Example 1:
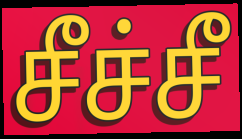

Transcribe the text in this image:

சீச்சீ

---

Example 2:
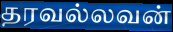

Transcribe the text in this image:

தரவல்லவன்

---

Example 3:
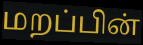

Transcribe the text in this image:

மறப்பின்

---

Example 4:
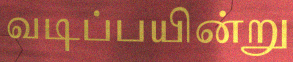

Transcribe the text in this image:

வடிப்பயின்று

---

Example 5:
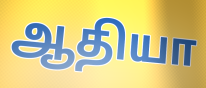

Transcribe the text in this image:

ஆதியா